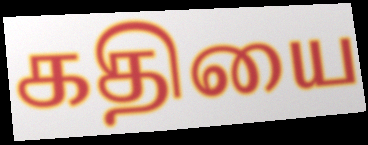
கதியை